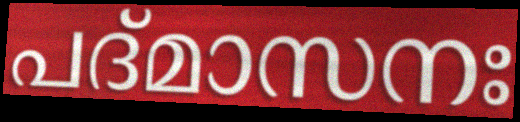
പദ്മാസനഃ